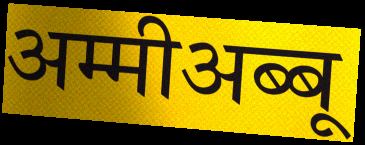
अम्मीअब्बू